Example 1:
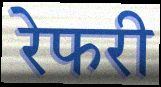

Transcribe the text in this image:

रेफरी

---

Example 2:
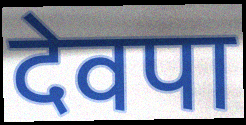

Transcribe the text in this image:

देवपा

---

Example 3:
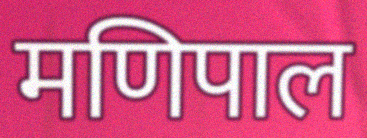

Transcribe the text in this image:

मणिपाल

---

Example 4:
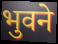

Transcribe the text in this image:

भुवने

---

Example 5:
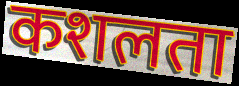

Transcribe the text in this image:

कशलता